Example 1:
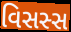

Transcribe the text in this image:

વિસસ્સ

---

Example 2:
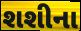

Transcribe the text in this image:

શશીના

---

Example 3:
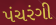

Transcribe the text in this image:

પંચરંગી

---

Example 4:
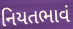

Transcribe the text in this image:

નિયતભાવં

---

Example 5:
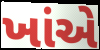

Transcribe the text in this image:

ખાંએ